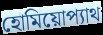
হোমিয়োপ্যাথ